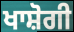
ਖਾਸ਼ੋਗੀ